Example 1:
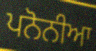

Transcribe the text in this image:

ਪਨੋਨੀਆ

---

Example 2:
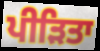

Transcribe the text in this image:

ਪੀੜਿਤਾ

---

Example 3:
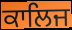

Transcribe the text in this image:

ਕਾਲਿਜ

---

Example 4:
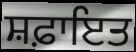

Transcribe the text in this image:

ਸ਼ਫ਼ਾਇਤ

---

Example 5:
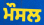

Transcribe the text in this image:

ਮੌਸਲ